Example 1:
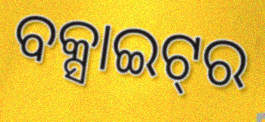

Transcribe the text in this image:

ବକ୍ସାଇଟ୍‌ର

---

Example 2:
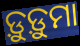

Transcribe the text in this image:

ଡ଼ୁଡ଼ୁମା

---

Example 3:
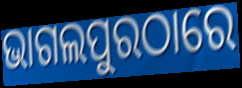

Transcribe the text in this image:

ଭାଗଲପୁରଠାରେ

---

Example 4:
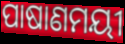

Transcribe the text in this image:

ପାଷାଣମୟୀ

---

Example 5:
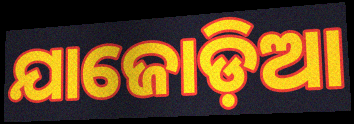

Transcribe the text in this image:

ଯାଜୋଡ଼ିଆ